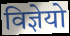
विज्ञेयो